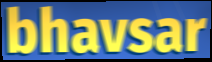
bhavsar